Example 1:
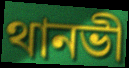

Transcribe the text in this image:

থানভী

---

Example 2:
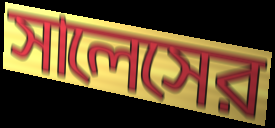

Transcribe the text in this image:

সালেসের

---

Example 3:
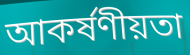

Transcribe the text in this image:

আকর্ষণীয়তা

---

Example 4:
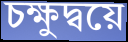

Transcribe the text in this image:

চক্ষুদ্বয়ে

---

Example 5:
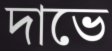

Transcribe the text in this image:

দাভে